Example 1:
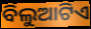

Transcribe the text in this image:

ବିଲୁଆଟିଏ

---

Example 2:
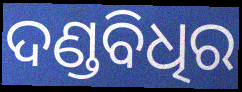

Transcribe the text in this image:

ଦଣ୍ଡବିଧିର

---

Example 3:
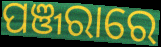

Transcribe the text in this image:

ପଞ୍ଜରାରେ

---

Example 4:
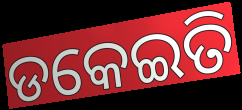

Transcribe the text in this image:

ଡକେଇତି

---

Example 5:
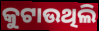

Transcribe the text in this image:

କୁଟାଉଥିଲି